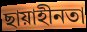
ছায়াহীনতা